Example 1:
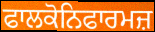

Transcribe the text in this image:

ਫਾਲਕੋਨਿਫਾਰਮਜ਼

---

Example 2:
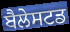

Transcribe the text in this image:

ਬੈਲੇਸਟਡ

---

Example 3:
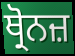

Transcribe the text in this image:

ਥ੍ਰੋਨਜ਼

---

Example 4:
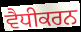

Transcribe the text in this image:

ਵੈਧੀਕਰਨ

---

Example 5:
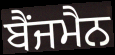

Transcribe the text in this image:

ਬੈਂਜਮੈਨ